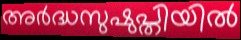
അർദ്ധസുഷുപ്തിയിൽ